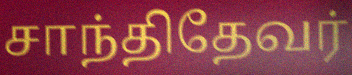
சாந்திதேவர்